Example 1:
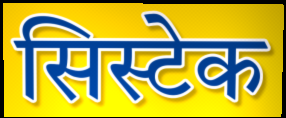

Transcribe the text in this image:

सिस्टेक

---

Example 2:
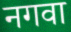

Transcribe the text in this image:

नगवा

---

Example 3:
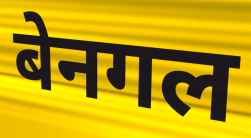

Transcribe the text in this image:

बेनगल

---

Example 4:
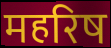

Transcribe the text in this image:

महरिष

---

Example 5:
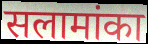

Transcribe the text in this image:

सलामांका